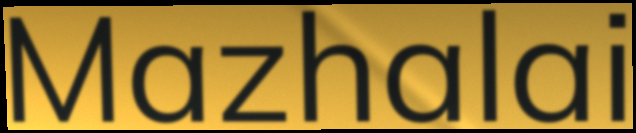
Mazhalai